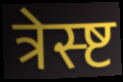
त्रेस्ष्ट